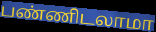
பண்ணிடலாமா